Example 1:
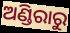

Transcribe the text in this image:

ଅଣ୍ଡିରାରୁ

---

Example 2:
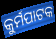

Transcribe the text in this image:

କୁର୍ମପାଟକ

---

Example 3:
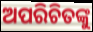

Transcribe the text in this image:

ଅପରିଚିତଙ୍କୁ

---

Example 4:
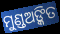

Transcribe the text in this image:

ମୁଣ୍ଡଅଙ୍କିତ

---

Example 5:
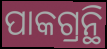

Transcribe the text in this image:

ପାକଗ୍ରନ୍ଥି